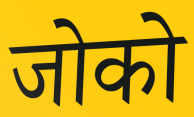
जोको